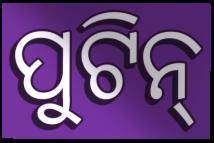
ପୁଟିନ୍